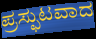
ಪ್ರಸ್ಫುಟವಾದ